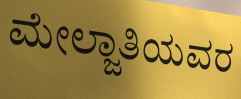
ಮೇಲ್ಜಾತಿಯವರ